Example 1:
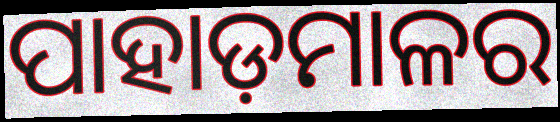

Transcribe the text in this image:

ପାହାଡ଼ମାଳର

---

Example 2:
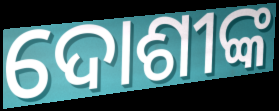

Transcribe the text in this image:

ଦୋଶୀଙ୍କ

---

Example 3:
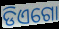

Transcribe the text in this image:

ଡିଏଗୋ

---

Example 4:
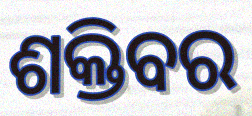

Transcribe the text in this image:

ଶକ୍ତିବର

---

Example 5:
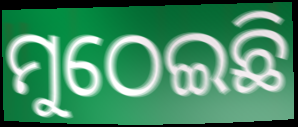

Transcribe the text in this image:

ମୁଠେଇଛି